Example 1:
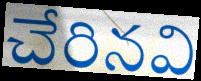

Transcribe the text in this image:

చేరినవి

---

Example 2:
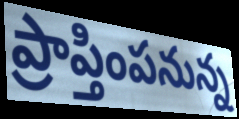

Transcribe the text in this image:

ప్రాప్తింపనున్న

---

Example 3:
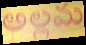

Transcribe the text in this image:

అల్లమ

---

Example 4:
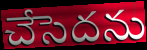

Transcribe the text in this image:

చేసెదను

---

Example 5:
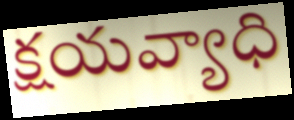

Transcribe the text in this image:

క్షయవ్యాధి